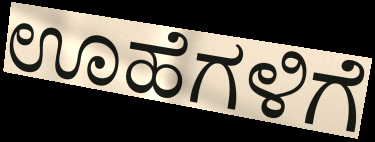
ಊಹೆಗಳಿಗೆ